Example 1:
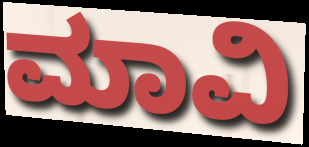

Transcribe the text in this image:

ಮಾವಿ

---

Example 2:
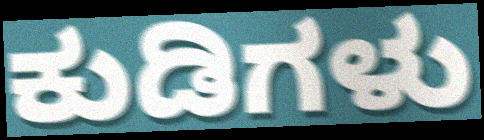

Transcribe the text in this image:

ಕುಡಿಗಳು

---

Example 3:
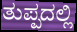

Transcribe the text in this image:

ತುಪ್ಪದಲ್ಲಿ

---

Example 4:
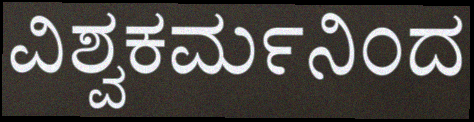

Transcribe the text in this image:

ವಿಶ್ವಕರ್ಮನಿಂದ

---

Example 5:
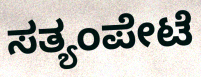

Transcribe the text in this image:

ಸತ್ಯಂಪೇಟೆ